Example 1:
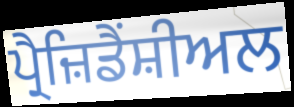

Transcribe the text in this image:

ਪ੍ਰੈਜ਼ਿਡੈਂਸ਼ੀਅਲ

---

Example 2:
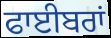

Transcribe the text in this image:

ਫਾਈਬਰਾਂ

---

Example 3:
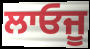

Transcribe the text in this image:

ਲਾਓਜੂ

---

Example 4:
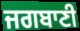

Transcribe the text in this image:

ਜਗਬਾਣੀ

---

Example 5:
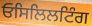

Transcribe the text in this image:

ਓਸਿਲਿਲਟਿੰਗ